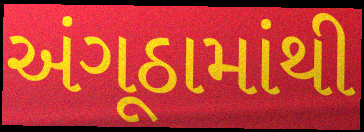
અંગૂઠામાંથી